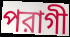
পরাগী